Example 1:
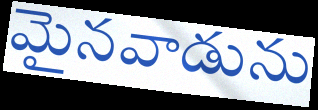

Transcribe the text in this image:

మైనవాడును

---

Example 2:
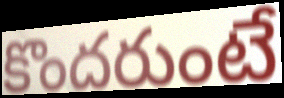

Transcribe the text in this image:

కొందరుంటే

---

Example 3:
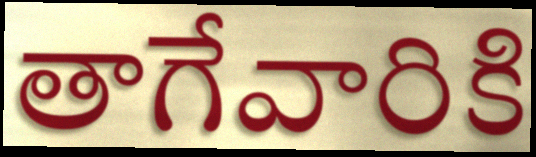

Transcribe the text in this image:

తాగేవారికి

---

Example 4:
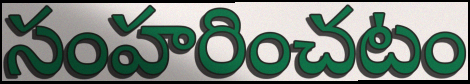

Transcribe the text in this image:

సంహరించటం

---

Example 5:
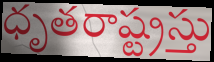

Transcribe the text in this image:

ధృతరాష్ట్రస్తు